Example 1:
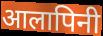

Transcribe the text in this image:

आलापिनी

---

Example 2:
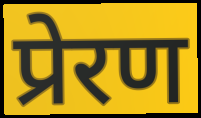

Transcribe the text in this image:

प्रेरण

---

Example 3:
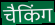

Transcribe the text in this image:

चैकिंग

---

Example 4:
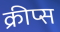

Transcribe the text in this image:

क्रीप्स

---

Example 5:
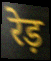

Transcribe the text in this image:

रेड़